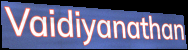
Vaidiyanathan